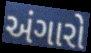
અંગારો